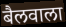
बैलवाला